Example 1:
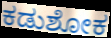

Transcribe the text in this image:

ಕಡುಶೋಕ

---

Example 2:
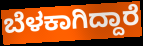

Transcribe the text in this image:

ಬೆಳಕಾಗಿದ್ದಾರೆ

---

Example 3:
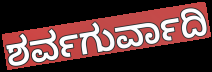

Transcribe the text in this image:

ಶರ್ವಗುರ್ವಾದಿ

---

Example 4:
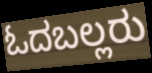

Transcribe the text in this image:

ಓದಬಲ್ಲರು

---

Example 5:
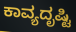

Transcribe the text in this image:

ಕಾವ್ಯದೃಷ್ಟಿ